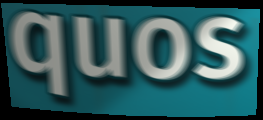
quos